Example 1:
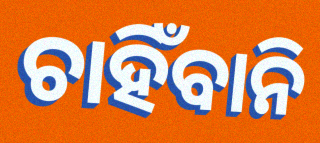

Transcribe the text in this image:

ଚାହିଁବାନି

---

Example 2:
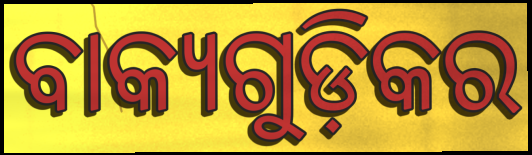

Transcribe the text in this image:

ବାକ୍ୟଗୁଡ଼ିକର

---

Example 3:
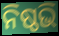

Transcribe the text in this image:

ନିଷ୍ଠଭି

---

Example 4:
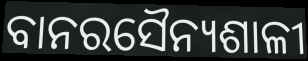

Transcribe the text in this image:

ବାନରସୈନ୍ୟଶାଳୀ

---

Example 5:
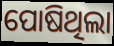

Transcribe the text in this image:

ପୋଷିଥିଲା